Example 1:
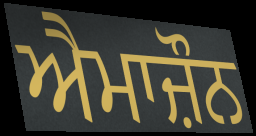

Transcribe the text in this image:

ਐਮਾਜ਼ੌਨ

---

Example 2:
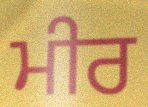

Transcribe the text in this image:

ਮੀਰ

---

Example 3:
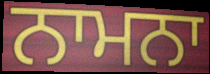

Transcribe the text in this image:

ਨਾਮਨਾ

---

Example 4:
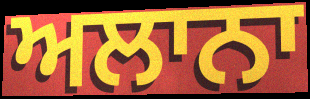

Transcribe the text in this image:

ਅਲਾਨਾ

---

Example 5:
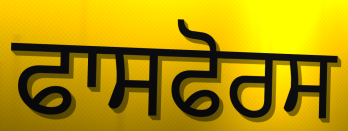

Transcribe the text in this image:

ਫਾਸਫੋਰਸ